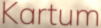
Kartum